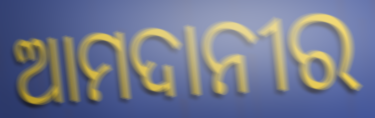
ଆମଦାନୀର